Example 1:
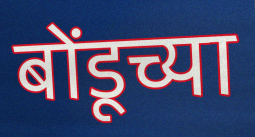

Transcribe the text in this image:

बोंडूच्या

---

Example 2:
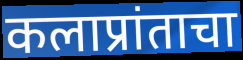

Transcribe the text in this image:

कलाप्रांताचा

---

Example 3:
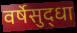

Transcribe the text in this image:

वर्षेसुद्धा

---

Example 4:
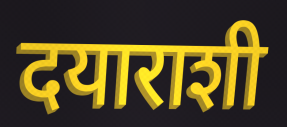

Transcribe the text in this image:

दयाराशी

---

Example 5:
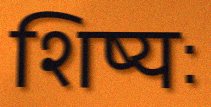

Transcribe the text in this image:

शिष्यः